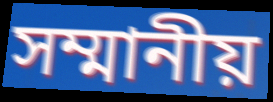
সম্মানীয়